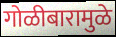
गोळीबारामुळे